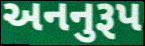
અનનુરૂપ